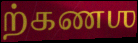
ற்கணஶ